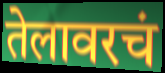
तेलावरचं